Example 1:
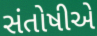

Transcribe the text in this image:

સંતોષીએ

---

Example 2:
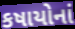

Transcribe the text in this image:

કષાયોનાં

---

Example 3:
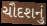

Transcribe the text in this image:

ચૌદશનું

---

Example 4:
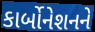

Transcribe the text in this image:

કાર્બોનેશનને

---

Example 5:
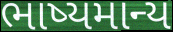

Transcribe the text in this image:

ભાષ્યમાન્ય